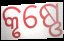
କୃଷ୍ଣେ